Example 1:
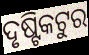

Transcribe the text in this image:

ଦୃଷ୍ଟିକଟୁର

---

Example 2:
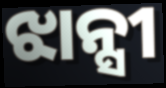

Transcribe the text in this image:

ଝାନ୍ସୀ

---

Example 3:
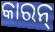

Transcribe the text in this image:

କାରନ୍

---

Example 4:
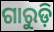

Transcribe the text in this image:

ଗାରୁଡ଼ି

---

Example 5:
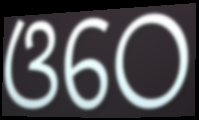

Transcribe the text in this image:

ଓଠେ